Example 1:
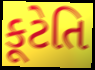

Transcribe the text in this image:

કૂટેતિ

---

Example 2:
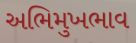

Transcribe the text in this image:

અભિમુખભાવ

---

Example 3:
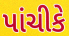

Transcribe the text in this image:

પાંચીકે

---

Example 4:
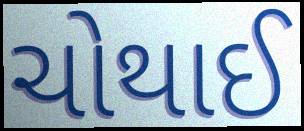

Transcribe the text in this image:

ચોથાઈ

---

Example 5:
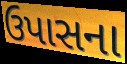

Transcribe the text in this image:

ઉપાસના